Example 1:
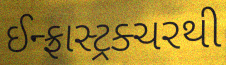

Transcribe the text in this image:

ઈન્ફ્રાસ્ટ્રક્ચરથી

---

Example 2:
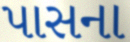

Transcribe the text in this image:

પાસના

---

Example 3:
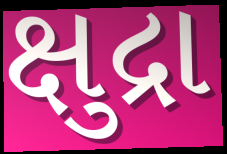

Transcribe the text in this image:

ક્ષુદ્રા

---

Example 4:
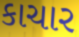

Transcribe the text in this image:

કાચાર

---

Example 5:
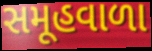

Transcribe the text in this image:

સમૂહવાળા